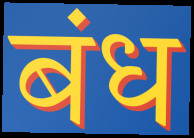
बंध